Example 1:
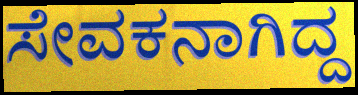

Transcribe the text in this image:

ಸೇವಕನಾಗಿದ್ದ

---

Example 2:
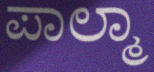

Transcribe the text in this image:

ಪಾಲ್ಮಾ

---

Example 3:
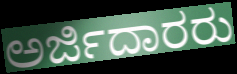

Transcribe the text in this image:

ಅರ್ಜಿದಾರರು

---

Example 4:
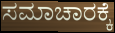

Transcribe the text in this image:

ಸಮಾಚಾರಕ್ಕೆ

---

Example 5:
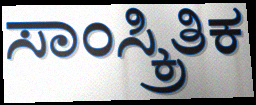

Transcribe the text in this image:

ಸಾಂಸ್ಕ್ರಿತಿಕ